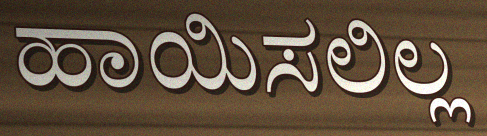
ಹಾಯಿಸಲಿಲ್ಲ